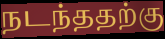
நடந்ததற்கு